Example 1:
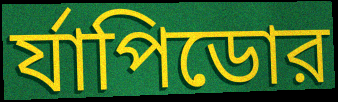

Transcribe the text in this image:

র্যাপিডোর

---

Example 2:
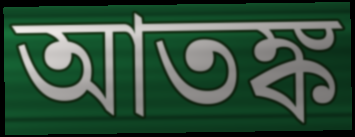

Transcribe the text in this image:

আতঙ্ক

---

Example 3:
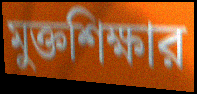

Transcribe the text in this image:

মুক্তশিক্ষার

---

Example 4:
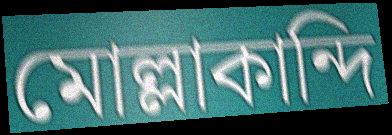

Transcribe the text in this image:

মোল্লাকান্দি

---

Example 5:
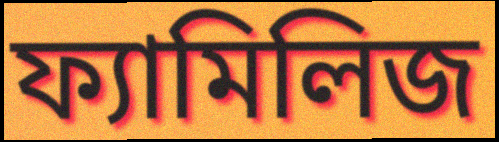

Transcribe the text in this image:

ফ্যামিলিজ